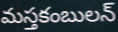
మస్తకంబులన్